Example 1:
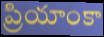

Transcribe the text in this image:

ప్రియాంకా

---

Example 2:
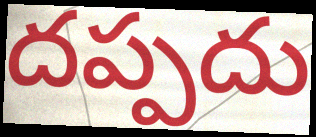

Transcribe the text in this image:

దప్పదు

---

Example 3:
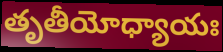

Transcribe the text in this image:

తృతీయోధ్యాయః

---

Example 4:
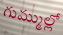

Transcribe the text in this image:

గుమ్ముల్లో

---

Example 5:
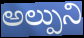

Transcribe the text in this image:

అల్పుని